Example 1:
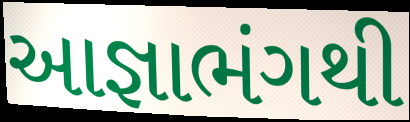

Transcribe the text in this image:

આજ્ઞાભંગથી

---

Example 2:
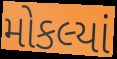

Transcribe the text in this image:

મોકલ્યાં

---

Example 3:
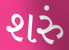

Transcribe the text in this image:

શરું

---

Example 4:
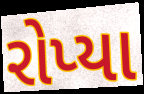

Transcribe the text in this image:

રોપ્યા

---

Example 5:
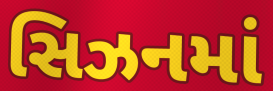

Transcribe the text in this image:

સિઝનમાં